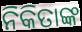
ନିକିତାଙ୍କ